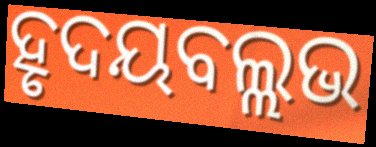
ହୃଦୟବଲ୍ଲଭ